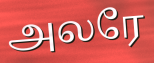
அலரே